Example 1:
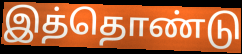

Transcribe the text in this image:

இத்தொண்டு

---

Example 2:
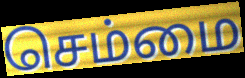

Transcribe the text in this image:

செம்மை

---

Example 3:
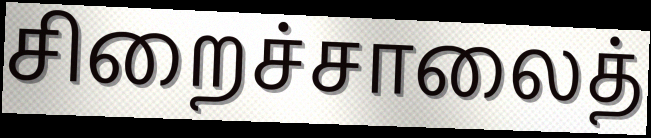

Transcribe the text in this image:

சிறைச்சாலைத்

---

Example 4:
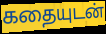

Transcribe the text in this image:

கதையுடன்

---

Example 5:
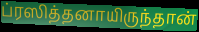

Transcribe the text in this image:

ப்ரஸித்தனாயிருந்தான்